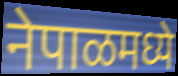
नेपाळमध्ये